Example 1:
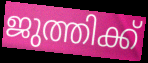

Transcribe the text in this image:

ജുത്തിക്ക്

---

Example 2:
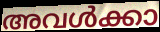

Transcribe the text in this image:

അവൾക്കാ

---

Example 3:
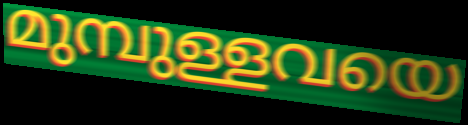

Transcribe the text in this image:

മുമ്പുള്ളവയെ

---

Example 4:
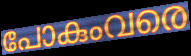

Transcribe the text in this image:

പോകുംവരെ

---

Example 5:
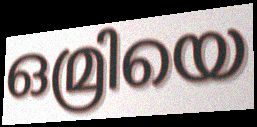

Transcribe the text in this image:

ഒമ്രിയെ